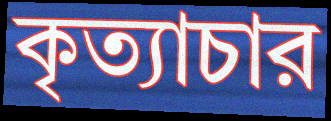
কৃত্যাচার